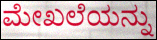
ಮೇಖಲೆಯನ್ನು